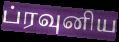
ப்ரவுனிய